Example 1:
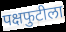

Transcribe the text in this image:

पक्षफुटीला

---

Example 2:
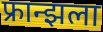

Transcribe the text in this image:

फ्रान्झला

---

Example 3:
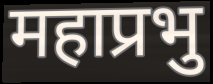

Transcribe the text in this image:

महाप्रभु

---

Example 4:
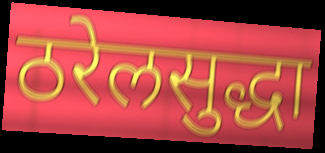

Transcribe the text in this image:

ठरेलसुद्धा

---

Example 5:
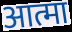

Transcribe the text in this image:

आत्मा